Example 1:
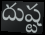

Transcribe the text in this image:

దుష్ట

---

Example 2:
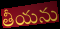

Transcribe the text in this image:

తీయను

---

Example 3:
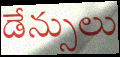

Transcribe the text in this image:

డేన్సులు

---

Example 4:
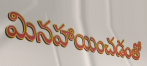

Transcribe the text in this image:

మినహాయించడంతో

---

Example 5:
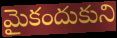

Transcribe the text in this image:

మైకందుకుని